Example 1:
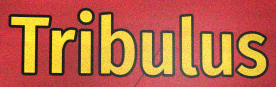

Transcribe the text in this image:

Tribulus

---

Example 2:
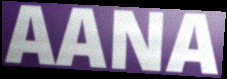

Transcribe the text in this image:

AANA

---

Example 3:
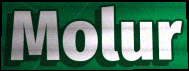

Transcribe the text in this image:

Molur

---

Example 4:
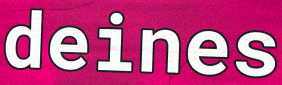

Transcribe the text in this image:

deines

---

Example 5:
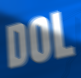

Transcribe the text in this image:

DOL